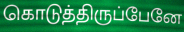
கொடுத்திருப்பேனே